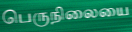
பெருநிலையை